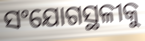
ସଂଯୋଗସ୍ଥଳୀକୁ